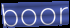
boor